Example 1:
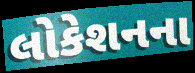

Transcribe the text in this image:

લોકેશનના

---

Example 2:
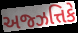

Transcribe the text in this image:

અજ્ઝત્તિકે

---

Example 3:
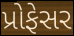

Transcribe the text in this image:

પ્રોફેસર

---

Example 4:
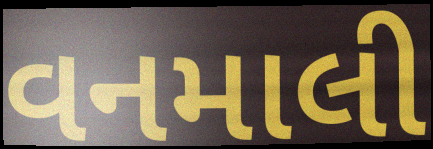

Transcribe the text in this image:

વનમાલી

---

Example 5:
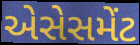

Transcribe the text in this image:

એસેસમેંટ